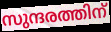
സുന്ദരത്തിന്